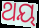
ଥୟ